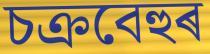
চক্ৰবেহুৰ